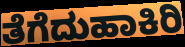
ತೆಗೆದುಹಾಕಿರಿ